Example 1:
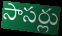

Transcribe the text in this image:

సాసర్లు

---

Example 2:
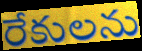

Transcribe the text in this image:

రేకులను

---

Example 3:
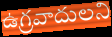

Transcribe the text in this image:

ఉగ్రవాదులని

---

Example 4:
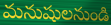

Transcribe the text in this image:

మనుషులనుండి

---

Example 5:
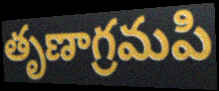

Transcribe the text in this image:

తృణాగ్రమపి